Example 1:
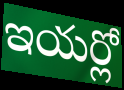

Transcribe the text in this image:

ఇయర్లో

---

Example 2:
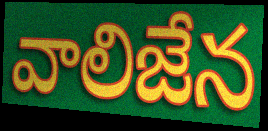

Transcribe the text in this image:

వాలిజేన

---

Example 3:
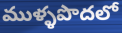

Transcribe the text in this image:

ముళ్ళపొదలో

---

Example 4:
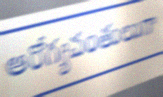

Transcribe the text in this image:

ఆరోగ్యవంతులుగా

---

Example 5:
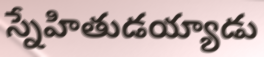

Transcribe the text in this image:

స్నేహితుడయ్యాడు